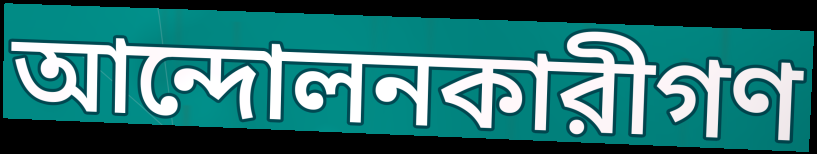
আন্দোলনকারীগণ